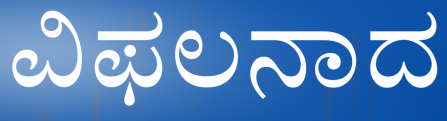
ವಿಫಲನಾದ